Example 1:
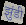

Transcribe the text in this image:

झुंडी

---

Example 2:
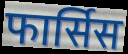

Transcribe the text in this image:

फार्सिस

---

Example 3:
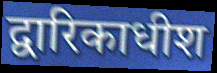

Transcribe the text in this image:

द्वारिकाधीश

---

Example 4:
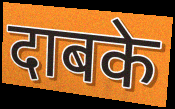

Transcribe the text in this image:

दाबके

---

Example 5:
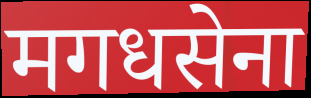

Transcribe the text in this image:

मगधसेना